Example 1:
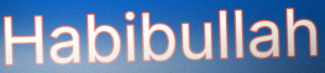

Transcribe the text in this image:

Habibullah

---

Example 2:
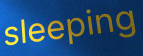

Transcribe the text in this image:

sleeping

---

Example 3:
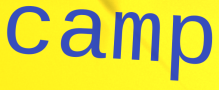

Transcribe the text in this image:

camp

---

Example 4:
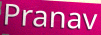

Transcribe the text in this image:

Pranav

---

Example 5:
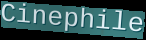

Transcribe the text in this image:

Cinephile